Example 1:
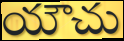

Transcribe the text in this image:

యౌచు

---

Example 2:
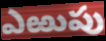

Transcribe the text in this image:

ఎఱుపు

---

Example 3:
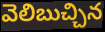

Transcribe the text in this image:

వెలిబుచ్చిన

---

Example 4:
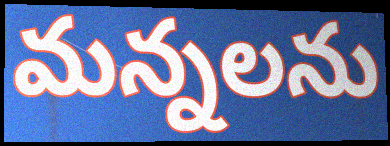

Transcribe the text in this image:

మన్నలను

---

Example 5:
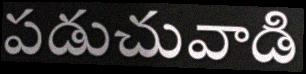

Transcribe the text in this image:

పడుచువాడి